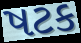
ષટક